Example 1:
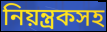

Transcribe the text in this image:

নিয়ন্ত্রকসহ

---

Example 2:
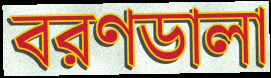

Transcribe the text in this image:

বরণডালা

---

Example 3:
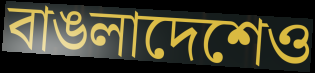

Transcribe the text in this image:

বাঙলাদেশেও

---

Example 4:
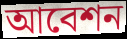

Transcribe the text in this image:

আবেশন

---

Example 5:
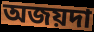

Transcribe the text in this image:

অজয়দা